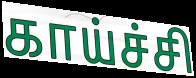
காய்ச்சி